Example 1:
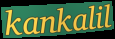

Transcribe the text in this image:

kankalil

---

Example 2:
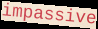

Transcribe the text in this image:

impassive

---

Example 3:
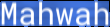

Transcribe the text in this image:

Mahwah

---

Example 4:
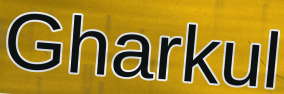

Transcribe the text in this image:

Gharkul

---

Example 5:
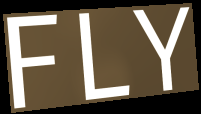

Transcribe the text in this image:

FLY